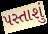
પસ્તાશું